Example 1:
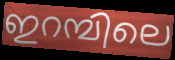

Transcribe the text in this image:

ഇറമ്പിലെ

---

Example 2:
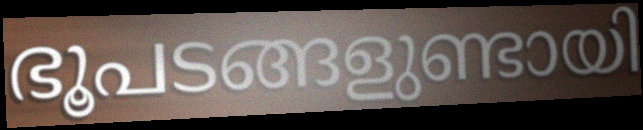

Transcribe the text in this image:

ഭൂപടങ്ങളുണ്ടായി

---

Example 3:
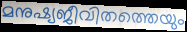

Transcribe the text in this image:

മനുഷ്യജീവിതത്തെയും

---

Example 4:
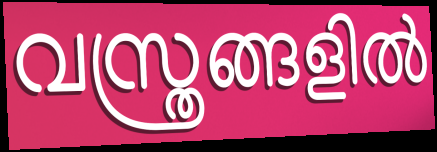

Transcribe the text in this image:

വസ്ത്രങ്ങളിൽ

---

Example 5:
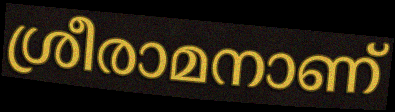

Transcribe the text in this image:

ശ്രീരാമനാണ്